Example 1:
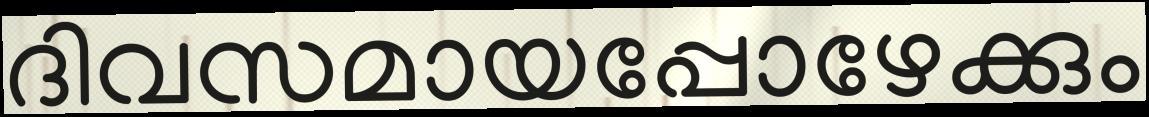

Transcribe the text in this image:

ദിവസമായപ്പോഴേക്കും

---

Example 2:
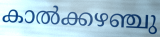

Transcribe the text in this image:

കാൽക്കഴഞ്ചു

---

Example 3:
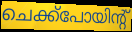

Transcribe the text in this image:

ചെക്ക്പോയിന്റ്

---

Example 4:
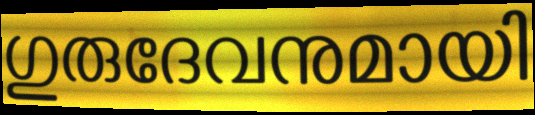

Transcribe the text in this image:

ഗുരുദേവനുമായി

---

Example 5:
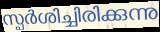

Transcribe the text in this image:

സ്പർശിച്ചിരിക്കുന്നു